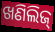
ଖଣିଲିଜ୍